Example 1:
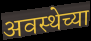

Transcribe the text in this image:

अवस्थेच्या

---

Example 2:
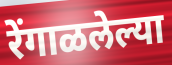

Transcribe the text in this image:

रेंगाळलेल्या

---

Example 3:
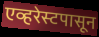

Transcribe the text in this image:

एव्हरेस्टपासून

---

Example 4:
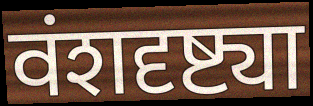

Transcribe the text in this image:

वंशदृष्ट्या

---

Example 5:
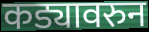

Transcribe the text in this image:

कड्यावरुन